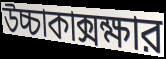
উচ্চাকাক্সক্ষার